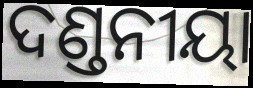
ଦଣ୍ଡନୀୟା